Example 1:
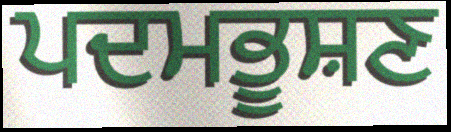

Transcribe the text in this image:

ਪਦਮਭੂਸ਼ਣ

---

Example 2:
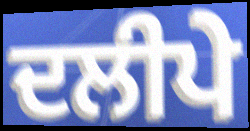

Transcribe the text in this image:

ਦਲੀਪੇ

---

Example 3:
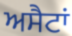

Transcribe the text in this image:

ਅਸੈਟਾਂ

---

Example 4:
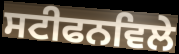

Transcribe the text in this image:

ਸਟੀਫਨਵਿਲੇ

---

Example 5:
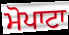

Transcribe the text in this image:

ਮੋਪਾਟਾ